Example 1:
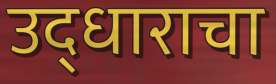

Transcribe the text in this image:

उद्धाराचा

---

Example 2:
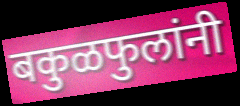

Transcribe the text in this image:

बकुळफुलांनी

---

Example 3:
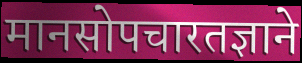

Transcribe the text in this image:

मानसोपचारतज्ञाने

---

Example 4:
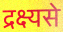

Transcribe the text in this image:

द्रक्ष्यसे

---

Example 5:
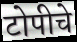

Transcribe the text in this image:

टोपीचे